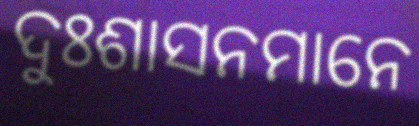
ଦୁଃଶାସନମାନେ